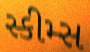
સ્કીમ્સ